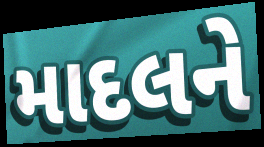
માદલને